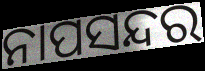
ନାପସନ୍ଦର